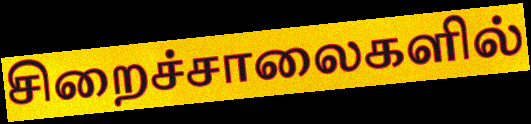
சிறைச்சாலைகளில்